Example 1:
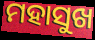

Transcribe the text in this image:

ମହାସୁଖ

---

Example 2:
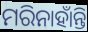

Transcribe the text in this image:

ମରିନାହାଁନ୍ତି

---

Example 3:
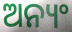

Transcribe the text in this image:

ଅନ୍ୟଂ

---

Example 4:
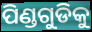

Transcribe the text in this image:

ପିଣ୍ଡଗୁଡିକୁ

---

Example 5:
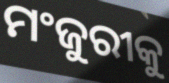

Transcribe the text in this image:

ମଂଜୁରୀକୁ